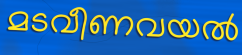
മടവീണവയൽ